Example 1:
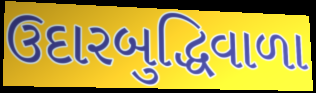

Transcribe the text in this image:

ઉદારબુદ્ધિવાળા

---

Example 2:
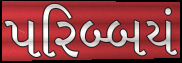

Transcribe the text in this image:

પરિબ્બયં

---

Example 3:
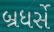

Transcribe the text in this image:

બ્રધર્સે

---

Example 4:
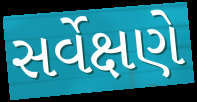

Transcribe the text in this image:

સર્વેક્ષણે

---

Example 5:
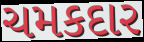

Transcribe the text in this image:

ચમકદાર